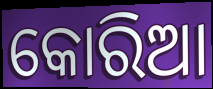
କୋରିଆ